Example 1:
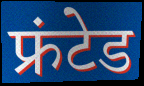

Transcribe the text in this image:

फ्रंटेड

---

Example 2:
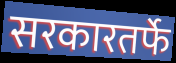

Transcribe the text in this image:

सरकारतर्फे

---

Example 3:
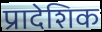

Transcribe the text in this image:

प्रादेशिक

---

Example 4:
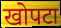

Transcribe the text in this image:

खोपटा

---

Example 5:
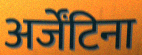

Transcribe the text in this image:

अर्जेंटिना